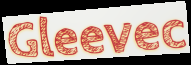
Gleevec